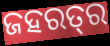
ଜହରତ୍‍ର